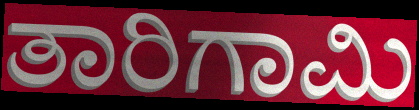
ತಾರಿಗಾಮಿ